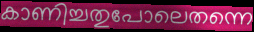
കാണിച്ചതുപോലെതന്നെ